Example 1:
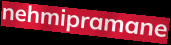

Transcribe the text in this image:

nehmipramane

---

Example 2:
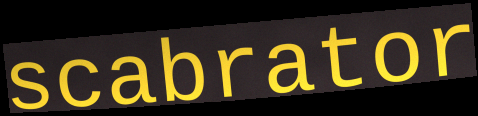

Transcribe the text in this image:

scabrator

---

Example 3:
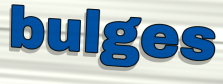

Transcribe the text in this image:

bulges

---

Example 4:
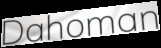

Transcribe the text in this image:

Dahoman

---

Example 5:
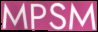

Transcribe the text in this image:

MPSM